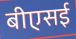
बीएसई